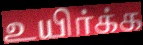
உயிர்க்க